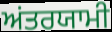
ਅਂਤਰਯਾਮੀ